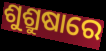
ଶୁଶ୍ରୁଷାରେ